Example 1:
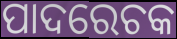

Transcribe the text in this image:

ପାଦରେଚକ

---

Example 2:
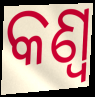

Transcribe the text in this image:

କଣ୍ୱ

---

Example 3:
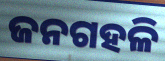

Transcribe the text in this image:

ଜନଗହଳି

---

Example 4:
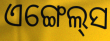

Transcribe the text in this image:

ଏଙ୍ଗେଲ୍‌ସ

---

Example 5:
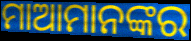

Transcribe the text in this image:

ମାଆମାନଙ୍କର